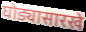
घोड्यासारखे